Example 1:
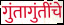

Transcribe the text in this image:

गुंतागुंतींचे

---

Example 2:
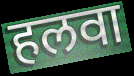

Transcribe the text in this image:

हलवा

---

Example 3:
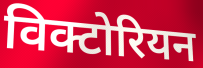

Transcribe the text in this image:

विक्टोरियन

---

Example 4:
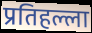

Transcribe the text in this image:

प्रतिहल्ला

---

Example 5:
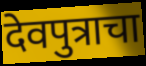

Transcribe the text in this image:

देवपुत्राचा